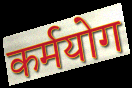
कर्मयोग